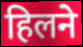
हिलने